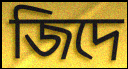
জিদে